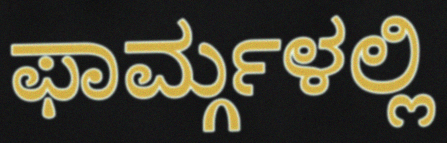
ಫಾರ್ಮ್ಗಳಲ್ಲಿ